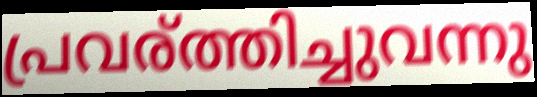
പ്രവര്ത്തിച്ചുവന്നു